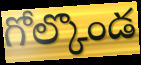
గోల్కొండ